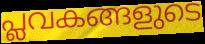
പ്ലവകങ്ങളുടെ